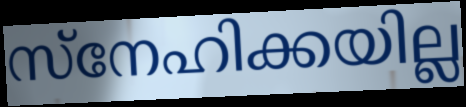
സ്നേഹിക്കയില്ല